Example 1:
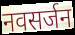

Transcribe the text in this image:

नवसर्जन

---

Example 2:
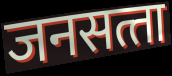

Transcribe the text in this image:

जनसत्‍ता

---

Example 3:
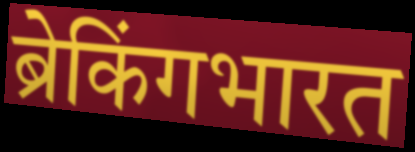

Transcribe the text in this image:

ब्रेकिंगभारत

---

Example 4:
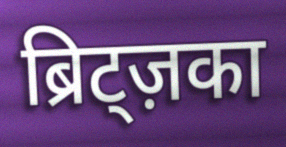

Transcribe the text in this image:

ब्रिट्ज़का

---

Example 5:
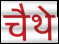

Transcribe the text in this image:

चैथे